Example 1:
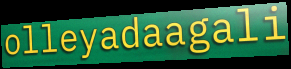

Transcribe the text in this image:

olleyadaagali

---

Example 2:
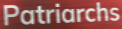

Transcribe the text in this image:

Patriarchs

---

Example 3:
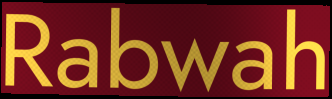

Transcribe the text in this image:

Rabwah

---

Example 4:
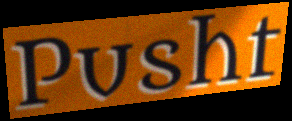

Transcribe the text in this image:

Pusht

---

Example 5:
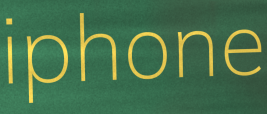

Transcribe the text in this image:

iphone